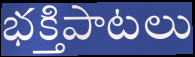
భక్తిపాటలు